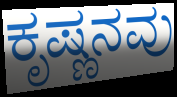
ಕೃಷ್ಣನವು